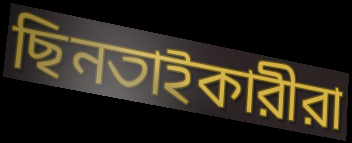
ছিনতাইকারীরা